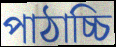
পাঠাচ্চি